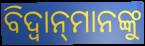
ବିଦ୍ଵାନ୍‌ମାନଙ୍କୁ